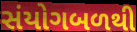
સંયોગબળથી